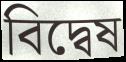
বিদ্বেষ